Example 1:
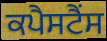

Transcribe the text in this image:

ਕਪੈਸਟੈਂਸ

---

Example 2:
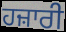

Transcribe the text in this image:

ਹਜ਼ਾਰੀ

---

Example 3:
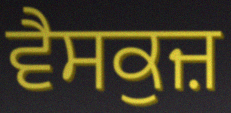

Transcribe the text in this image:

ਵੈਸਕੁਜ਼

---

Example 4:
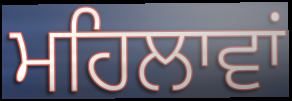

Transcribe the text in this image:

ਮਹਿਲਾਵਾਂ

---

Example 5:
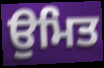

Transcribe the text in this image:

ਉਮਿਤ